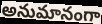
అనుమానంగా